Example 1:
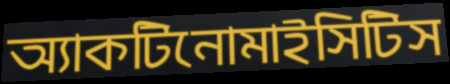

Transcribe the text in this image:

অ্যাকটিনোমাইসিটিস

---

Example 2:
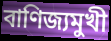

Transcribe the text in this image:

বাণিজ্যমুখী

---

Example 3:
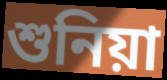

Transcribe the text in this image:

শুনিয়া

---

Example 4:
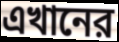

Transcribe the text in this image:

এখানের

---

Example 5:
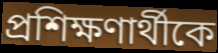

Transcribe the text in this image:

প্রশিক্ষণার্থীকে